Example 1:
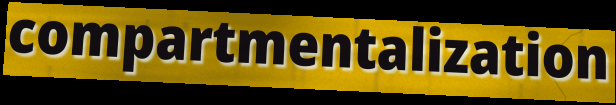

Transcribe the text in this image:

compartmentalization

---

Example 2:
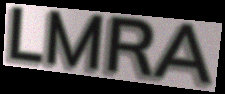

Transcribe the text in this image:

LMRA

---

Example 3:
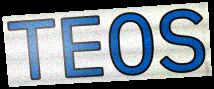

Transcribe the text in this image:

TEOS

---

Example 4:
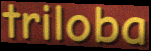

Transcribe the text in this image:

triloba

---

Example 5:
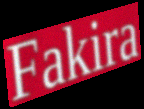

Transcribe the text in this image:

Fakira